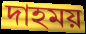
দাহময়